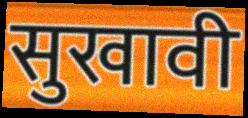
सुखावी